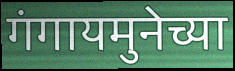
गंगायमुनेच्या